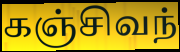
கஞ்சிவந்